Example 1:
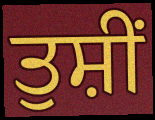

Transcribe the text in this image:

ਤੁਸ਼ੀਂ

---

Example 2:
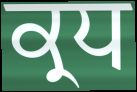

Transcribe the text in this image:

ਕ੍ਰਧ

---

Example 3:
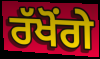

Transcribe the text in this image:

ਰੱਖੋਂਗੇ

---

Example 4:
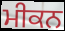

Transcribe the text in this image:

ਮੀਕਨ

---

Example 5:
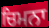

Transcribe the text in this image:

ਚਿਮਨਾ